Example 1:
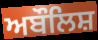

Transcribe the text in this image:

ਅਬੌਲਿਸ਼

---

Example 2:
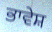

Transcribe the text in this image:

ਭਾਵੇਸ਼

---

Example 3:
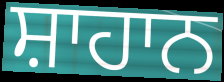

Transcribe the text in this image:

ਸ਼ਾਹਾਨ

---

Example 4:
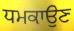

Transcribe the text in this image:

ਧਮਕਾਉਣ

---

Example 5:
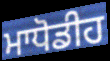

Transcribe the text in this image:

ਮਾਧੋਡੀਹ